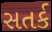
સતર્ક